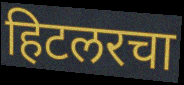
हिटलरचा